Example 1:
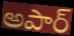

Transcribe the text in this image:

అపార్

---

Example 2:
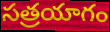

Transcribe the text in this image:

సత్రయాగం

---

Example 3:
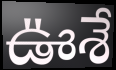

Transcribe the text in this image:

ఊశే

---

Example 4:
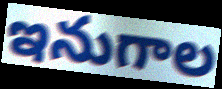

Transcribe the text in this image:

ఇనుగాల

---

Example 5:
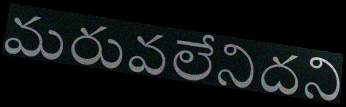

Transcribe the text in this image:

మరువలేనిదని